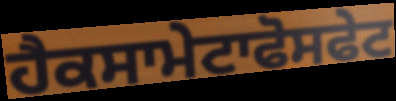
ਹੈਕਸਾਮੇਟਾਫੋਸਫੇਟ